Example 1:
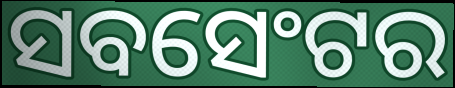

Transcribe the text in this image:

ସବସେଂଟର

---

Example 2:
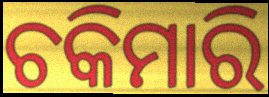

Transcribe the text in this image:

ଚକିମାରି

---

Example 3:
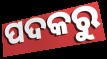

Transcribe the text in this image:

ପଦକରୁ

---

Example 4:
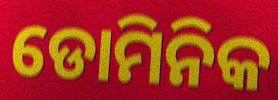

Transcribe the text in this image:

ଡୋମିନିକ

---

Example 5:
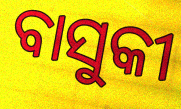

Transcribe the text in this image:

ବାସୁକୀ